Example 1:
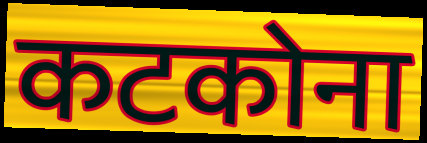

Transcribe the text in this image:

कटकोना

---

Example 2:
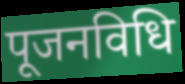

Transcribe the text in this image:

पूजनविधि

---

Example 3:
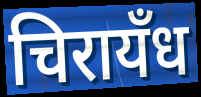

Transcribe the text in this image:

चिरायँध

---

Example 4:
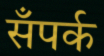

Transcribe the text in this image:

सँपर्क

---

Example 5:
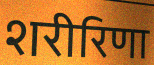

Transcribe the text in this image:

शरीरिणा